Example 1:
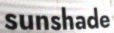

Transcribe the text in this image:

sunshade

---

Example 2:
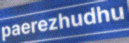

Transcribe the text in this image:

paerezhudhu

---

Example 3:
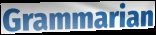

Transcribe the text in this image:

Grammarian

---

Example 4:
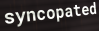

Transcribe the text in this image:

syncopated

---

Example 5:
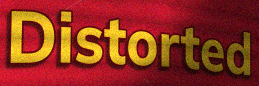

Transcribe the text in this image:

Distorted